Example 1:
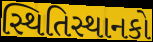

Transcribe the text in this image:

સ્થિતિસ્થાનકો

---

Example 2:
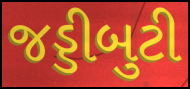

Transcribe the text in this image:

જડ્ડીબુટી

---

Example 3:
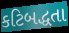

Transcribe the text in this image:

કટિબદ્ધતા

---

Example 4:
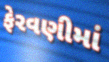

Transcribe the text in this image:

ફેરવણીમાં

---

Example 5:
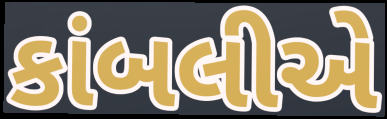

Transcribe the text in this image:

કાંબલીએ